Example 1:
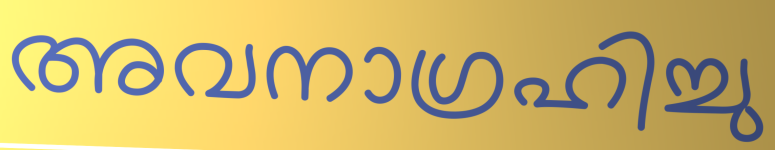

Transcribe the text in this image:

അവനാഗ്രഹിച്ചു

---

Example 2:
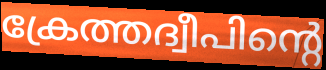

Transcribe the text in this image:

ക്രേത്തദ്വീപിന്റെ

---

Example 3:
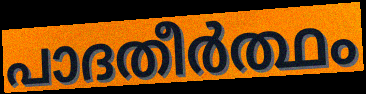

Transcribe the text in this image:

പാദതീർത്ഥം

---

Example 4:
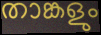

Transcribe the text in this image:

താങ്കളും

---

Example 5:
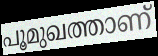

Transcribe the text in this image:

പൂമുഖത്താണ്